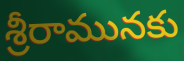
శ్రీరామునకు